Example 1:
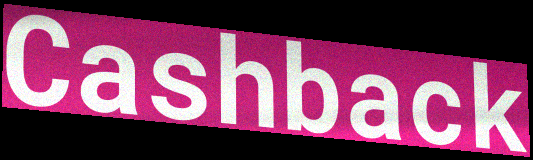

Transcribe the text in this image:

Cashback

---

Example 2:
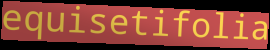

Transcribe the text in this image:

equisetifolia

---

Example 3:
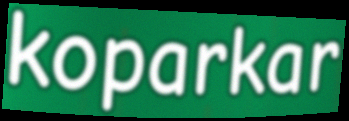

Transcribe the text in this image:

koparkar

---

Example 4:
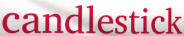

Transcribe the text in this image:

candlestick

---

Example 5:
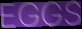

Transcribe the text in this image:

EGGS